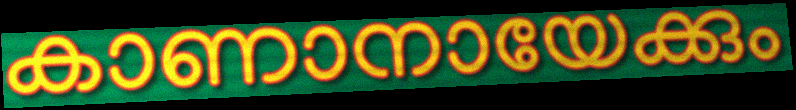
കാണാനായേക്കും